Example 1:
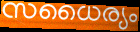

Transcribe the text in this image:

സധൈര്യം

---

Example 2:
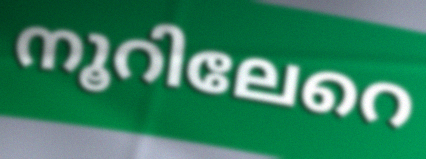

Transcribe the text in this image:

നൂറിലേറെ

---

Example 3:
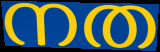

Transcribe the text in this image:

നത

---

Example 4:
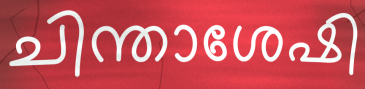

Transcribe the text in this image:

ചിന്താശേഷി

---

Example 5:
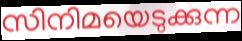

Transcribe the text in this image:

സിനിമയെടുക്കുന്ന